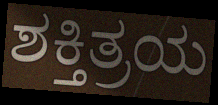
ಶಕ್ತಿತ್ರಯ